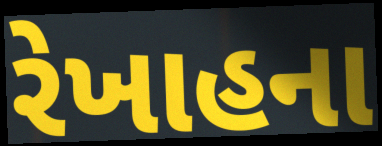
રેખાહના